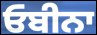
ਓਬੀਨਾ